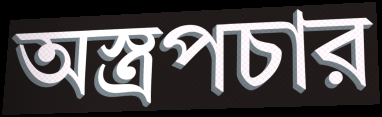
অস্ত্রপচার